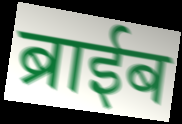
ब्राईब